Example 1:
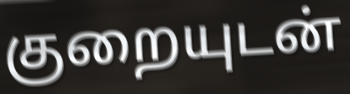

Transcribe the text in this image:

குறையுடன்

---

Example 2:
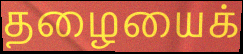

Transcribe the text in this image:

தழையைக்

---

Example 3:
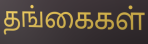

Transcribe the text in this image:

தங்கைகள்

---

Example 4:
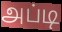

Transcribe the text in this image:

அப்டி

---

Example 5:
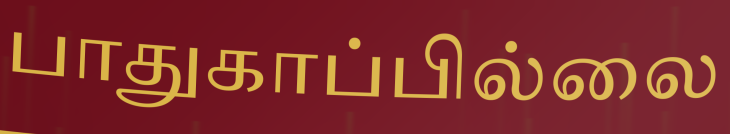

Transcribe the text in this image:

பாதுகாப்பில்லை